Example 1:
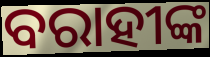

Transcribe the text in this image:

ବରାହୀଙ୍କ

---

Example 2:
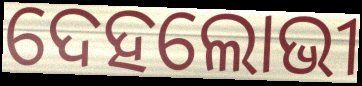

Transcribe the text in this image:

ଦେହଲୋଭୀ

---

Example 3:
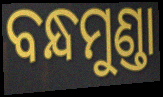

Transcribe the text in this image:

ବନ୍ଧମୁଣ୍ଡା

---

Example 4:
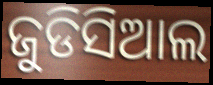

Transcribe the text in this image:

ଜୁଡିସିଆଲ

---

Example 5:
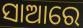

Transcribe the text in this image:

ସାଆରେ